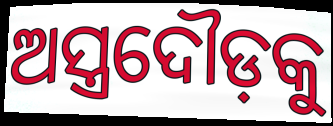
ଅସ୍ତ୍ରଦୌଡ଼କୁ